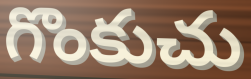
గొంకుచు